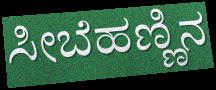
ಸೀಬೆಹಣ್ಣಿನ